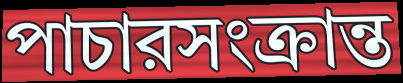
পাচারসংক্রান্ত